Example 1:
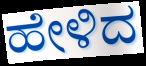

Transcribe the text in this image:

ಹೇಳಿದ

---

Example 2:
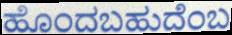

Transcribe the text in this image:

ಹೊಂದಬಹುದೆಂಬ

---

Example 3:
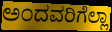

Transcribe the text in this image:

ಅಂದವರಿಗೆಲ್ಲಾ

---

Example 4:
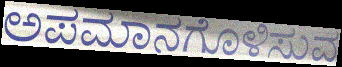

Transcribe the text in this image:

ಅಪಮಾನಗೊಳಿಸುವ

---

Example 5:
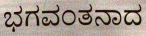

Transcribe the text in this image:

ಭಗವಂತನಾದ